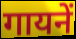
गायनें